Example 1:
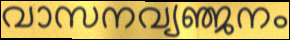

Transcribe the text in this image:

വാസനവ്യഞ്ജനം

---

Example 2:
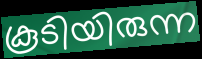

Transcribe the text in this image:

കൂടിയിരുന്ന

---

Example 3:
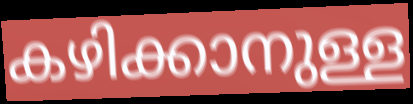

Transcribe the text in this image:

കഴിക്കാനുള്ള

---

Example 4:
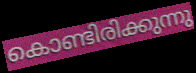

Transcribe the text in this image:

കൊണ്ടിരിക്കുന്നു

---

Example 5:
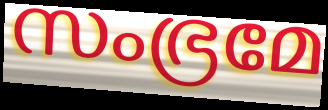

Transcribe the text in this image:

സംഭ്രമേ